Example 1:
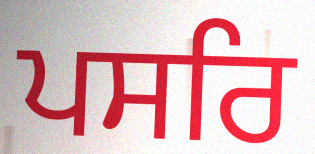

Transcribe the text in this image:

ਪਸਰਿ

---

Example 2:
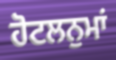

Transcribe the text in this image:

ਹੋਟਲਨੁਮਾਂ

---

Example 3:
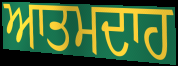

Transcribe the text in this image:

ਆਤਮਦਾਹ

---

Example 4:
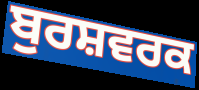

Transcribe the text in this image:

ਬੁਰਸ਼ਵਰਕ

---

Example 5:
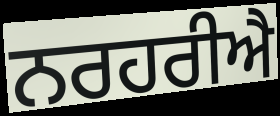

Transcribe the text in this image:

ਨਰਹਰੀਐ